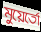
মুয়ের্তো